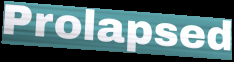
Prolapsed